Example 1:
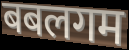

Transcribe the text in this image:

बबलगम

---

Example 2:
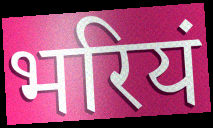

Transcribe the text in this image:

भरियं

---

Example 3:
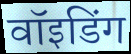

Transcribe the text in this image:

वॉइडिंग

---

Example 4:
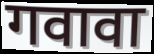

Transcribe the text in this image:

गवावा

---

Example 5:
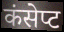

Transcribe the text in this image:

कंसेप्ट